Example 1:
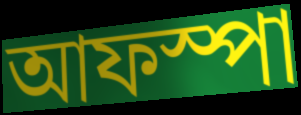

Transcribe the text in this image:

আফস্পা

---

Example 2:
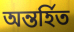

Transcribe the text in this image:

অন্তর্হিত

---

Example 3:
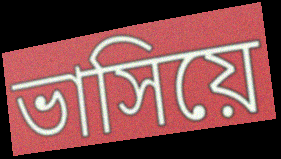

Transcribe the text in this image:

ভাসিয়ে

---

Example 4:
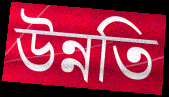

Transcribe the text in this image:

উন্নতি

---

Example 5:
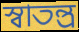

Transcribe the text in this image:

স্বাতন্ত্র